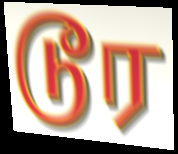
டூர